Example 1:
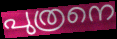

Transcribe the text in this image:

പുത്രനെ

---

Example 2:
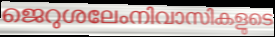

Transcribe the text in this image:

ജെറുശലേംനിവാസികളുടെ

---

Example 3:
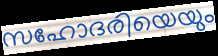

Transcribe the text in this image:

സഹോദരിയെയും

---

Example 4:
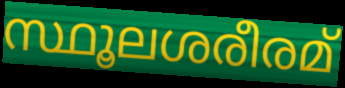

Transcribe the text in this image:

സ്ഥൂലശരീരമ്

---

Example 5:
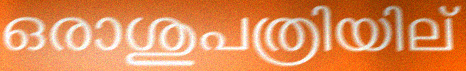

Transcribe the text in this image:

ഒരാശുപത്രിയില്